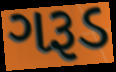
ગરૂડ